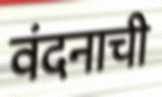
वंदनाची